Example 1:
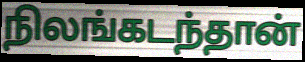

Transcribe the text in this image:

நிலங்கடந்தான்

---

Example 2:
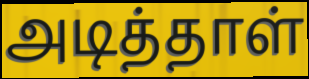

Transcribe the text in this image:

அடித்தாள்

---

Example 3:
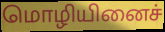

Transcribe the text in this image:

மொழியினைச்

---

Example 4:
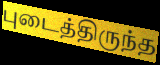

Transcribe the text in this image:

புடைத்திருந்த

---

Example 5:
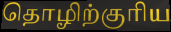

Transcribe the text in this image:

தொழிற்குரிய